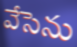
వేసెను